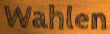
Wahlen